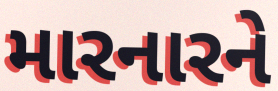
મારનારને